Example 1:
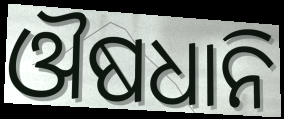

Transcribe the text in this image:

ଔଷଧାନି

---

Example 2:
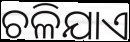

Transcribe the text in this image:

ଚଳିଯାଏ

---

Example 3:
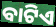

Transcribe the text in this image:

ବାଟିଏ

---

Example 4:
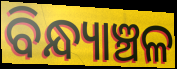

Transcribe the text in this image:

ବିନ୍ଧ୍ୟାଞ୍ଚଳ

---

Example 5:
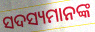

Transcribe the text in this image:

ସଦସ୍ୟମାନଙ୍କ